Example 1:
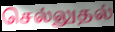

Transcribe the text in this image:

செல்லுதல்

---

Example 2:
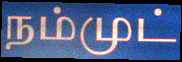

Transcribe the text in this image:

நம்முட்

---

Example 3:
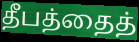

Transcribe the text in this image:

தீபத்தைத்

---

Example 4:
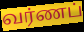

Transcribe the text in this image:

வர்ணப்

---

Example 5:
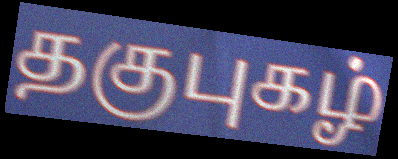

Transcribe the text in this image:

தகுபுகழ்